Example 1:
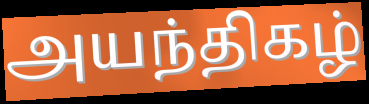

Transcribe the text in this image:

அயந்திகழ்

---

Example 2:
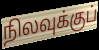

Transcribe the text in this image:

நிலவுக்குப்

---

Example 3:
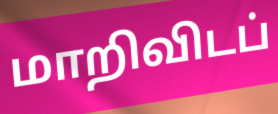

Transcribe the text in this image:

மாறிவிடப்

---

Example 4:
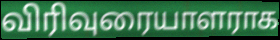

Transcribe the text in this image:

விரிவுரையாளராக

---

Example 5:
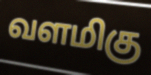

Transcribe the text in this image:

வளமிகு